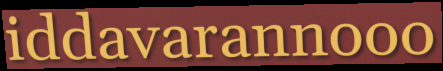
iddavarannooo